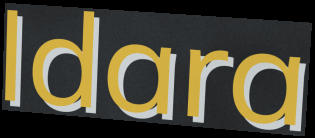
Idara